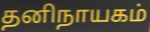
தனிநாயகம்